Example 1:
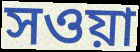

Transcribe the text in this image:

সওয়া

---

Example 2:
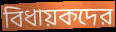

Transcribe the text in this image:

বিধায়কদের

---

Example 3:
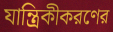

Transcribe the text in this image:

যান্ত্রিকীকরণের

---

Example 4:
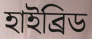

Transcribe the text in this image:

হাইব্রিড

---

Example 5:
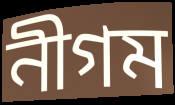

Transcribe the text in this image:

নীগম